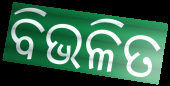
ବିଭଳିତ